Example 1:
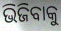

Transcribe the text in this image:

ଭିଜିବାକୁ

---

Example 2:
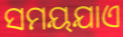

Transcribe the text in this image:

ସମୟଯାଏ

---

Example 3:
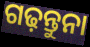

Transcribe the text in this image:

ଗଢ଼ନ୍ତୁନା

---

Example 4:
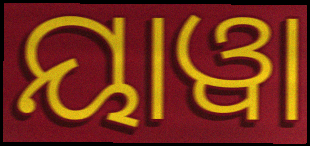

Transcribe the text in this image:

ୟାୱା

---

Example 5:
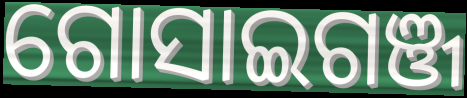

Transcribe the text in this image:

ଗୋସାଇଗଞ୍ଜ